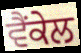
ਵੈਂਕੇਲ